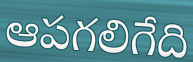
ఆపగలిగేది